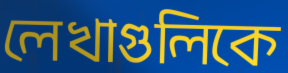
লেখাগুলিকে